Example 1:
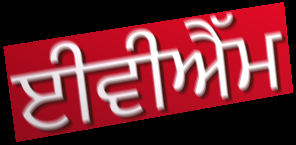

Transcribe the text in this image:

ਈਵੀਐੱਮ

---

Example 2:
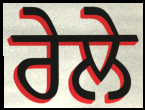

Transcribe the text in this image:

ਰੇਲੇ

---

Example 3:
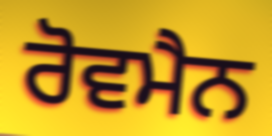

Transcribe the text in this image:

ਰੋਵਮੈਨ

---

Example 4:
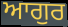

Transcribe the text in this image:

ਆਗੁਰ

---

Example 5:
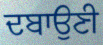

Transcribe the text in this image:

ਦਬਾਉਣੀ